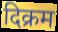
दिक्रम